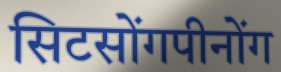
सिटसोंगपीनोंग